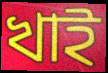
খাই